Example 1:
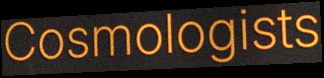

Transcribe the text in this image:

Cosmologists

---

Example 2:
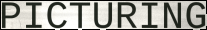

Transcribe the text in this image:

PICTURING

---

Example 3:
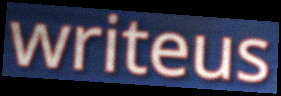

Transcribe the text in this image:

writeus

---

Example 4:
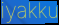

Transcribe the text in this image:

iyakku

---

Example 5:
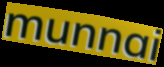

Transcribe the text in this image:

munnai